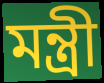
মন্ত্রী